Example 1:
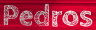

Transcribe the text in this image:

Pedros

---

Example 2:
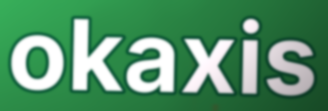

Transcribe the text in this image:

okaxis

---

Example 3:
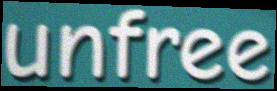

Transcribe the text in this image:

unfree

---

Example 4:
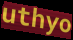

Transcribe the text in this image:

uthyo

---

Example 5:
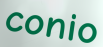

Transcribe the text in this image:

conio